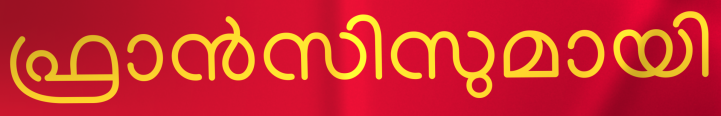
ഫ്രാൻസിസുമായി